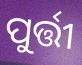
ପୁର୍ତ୍ତୀ